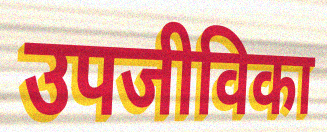
उपजीविका